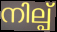
നില്പ്